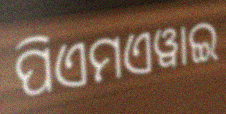
ପିଏମଏୱାଇ